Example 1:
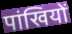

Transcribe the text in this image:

पांखियों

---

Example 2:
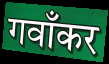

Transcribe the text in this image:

गवाँकर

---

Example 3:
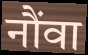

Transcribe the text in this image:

नौंवा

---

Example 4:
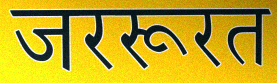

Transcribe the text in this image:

जररूरत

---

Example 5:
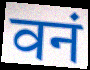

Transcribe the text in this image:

वनं